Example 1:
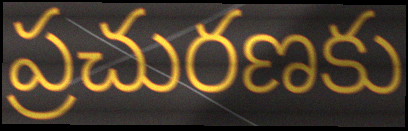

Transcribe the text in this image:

ప్రచురణకు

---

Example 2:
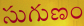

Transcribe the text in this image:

సుగుణం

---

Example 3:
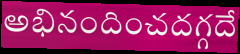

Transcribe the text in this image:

అభినందించదగ్గదే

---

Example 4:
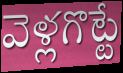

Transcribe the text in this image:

వెళ్లగొట్టే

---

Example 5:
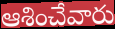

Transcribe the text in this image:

ఆశించేవారు